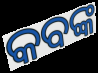
କବଙ୍କ